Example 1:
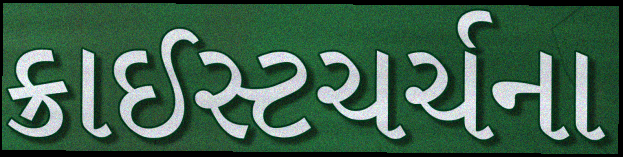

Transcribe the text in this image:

ક્રાઈસ્ટચર્ચના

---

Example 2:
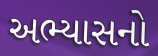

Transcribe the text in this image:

અભ્યાસનો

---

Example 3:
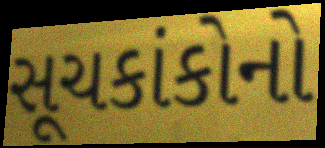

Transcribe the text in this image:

સૂચકાંકોનો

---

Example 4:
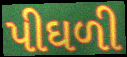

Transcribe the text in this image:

પીઘળી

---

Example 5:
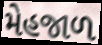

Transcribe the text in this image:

મેહજાળ